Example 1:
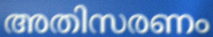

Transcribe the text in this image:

അതിസരണം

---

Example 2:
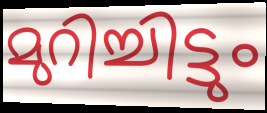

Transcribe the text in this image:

മുറിച്ചിട്ടും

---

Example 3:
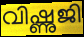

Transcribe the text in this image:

വിഷ്ണുജി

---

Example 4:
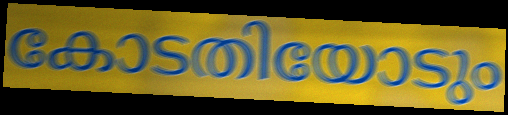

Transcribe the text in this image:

കോടതിയോടും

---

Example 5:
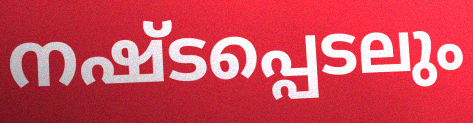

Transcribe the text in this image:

നഷ്ടപ്പെടലും